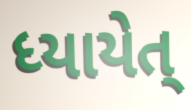
ધ્યાયેત્